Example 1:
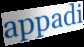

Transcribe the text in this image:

appadi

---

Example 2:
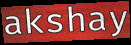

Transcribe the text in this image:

akshay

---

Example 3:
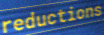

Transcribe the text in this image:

reductions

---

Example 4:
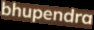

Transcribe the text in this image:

bhupendra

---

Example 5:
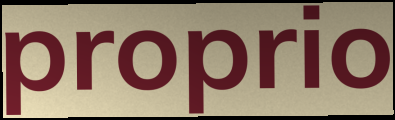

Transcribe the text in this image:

proprio